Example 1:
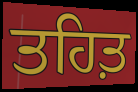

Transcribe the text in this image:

ਤਹਿਤ਼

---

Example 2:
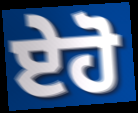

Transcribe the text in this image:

ਏਹੋ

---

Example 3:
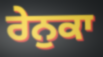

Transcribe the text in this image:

ਰੇਨੁਕਾ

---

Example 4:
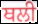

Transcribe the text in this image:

ਥਲੀ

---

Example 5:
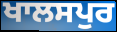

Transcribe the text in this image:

ਖਾਲਸਪੁਰ